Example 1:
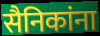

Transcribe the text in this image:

सैनिकांना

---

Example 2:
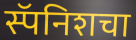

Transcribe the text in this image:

स्पॅनिशचा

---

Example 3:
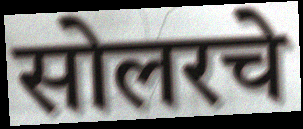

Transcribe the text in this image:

सोलरचे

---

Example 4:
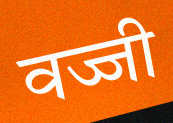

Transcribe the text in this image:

वज्जी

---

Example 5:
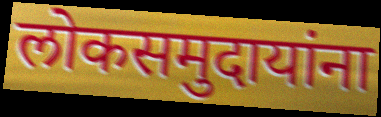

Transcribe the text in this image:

लोकसमुदायांना